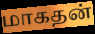
மாகதன்